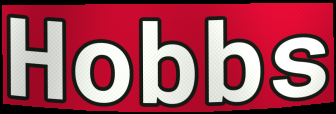
Hobbs